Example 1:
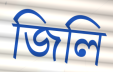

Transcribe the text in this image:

জিলি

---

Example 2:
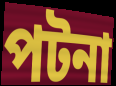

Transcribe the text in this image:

পটনা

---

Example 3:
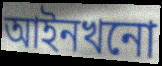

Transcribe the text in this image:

আইনখনো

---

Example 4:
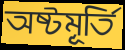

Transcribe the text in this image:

অষ্টমূৰ্তি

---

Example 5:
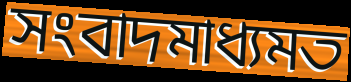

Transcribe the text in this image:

সংবাদমাধ্যমত